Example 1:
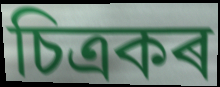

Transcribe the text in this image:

চিত্ৰকৰ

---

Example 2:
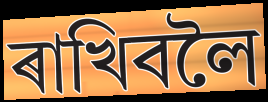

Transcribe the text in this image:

ৰাখিবলৈ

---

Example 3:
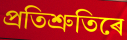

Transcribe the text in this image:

প্ৰতিশ্ৰুতিৰে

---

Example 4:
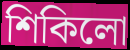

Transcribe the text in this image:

শিকিলো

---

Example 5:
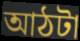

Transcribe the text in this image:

আঠটা